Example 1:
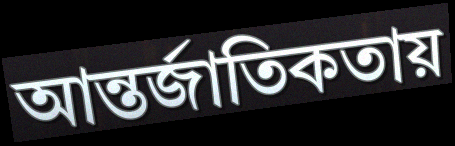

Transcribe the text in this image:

আন্তর্জাতিকতায়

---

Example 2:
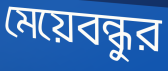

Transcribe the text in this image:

মেয়েবন্ধুর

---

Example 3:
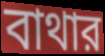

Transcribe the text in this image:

বাথার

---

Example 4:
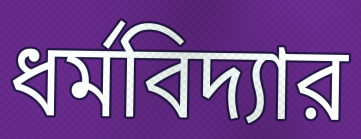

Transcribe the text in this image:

ধর্মবিদ্যার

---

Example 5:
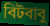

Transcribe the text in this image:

বিটবাবু